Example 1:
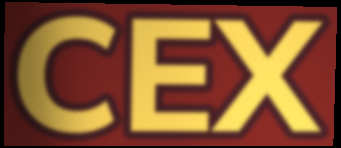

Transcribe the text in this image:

CEX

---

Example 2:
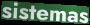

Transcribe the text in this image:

sistemas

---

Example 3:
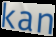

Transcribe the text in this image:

kan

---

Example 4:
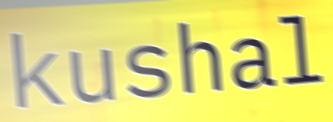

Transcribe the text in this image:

kushal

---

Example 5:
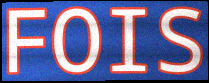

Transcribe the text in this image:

FOIS